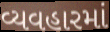
વ્યવહારમાં